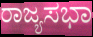
ರಾಜ್ಯಸಭಾ